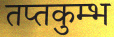
तप्तकुम्भ